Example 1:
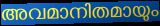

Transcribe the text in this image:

അവമാനിതമായും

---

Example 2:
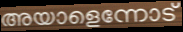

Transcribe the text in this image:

അയാളെന്നോട്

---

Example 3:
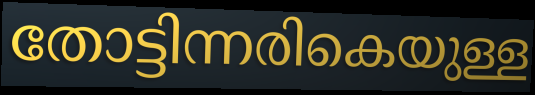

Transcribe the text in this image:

തോട്ടിന്നരികെയുള്ള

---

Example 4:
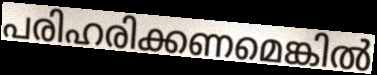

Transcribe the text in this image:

പരിഹരിക്കണമെങ്കിൽ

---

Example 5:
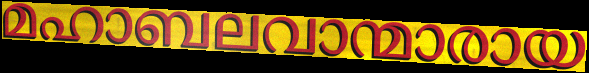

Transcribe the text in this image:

മഹാബലവാന്മാരായ